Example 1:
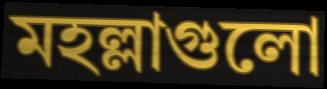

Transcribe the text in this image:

মহল্লাগুলো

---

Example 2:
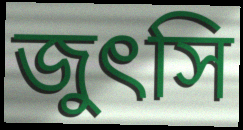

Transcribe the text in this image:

জুৎসি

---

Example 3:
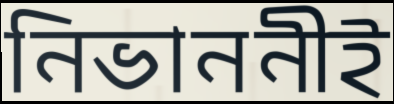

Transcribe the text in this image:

নিভাননীই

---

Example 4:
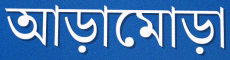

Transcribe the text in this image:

আড়ামোড়া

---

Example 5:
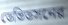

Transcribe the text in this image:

ডেভিডসনের